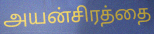
அயன்சிரத்தை